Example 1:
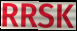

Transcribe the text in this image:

RRSK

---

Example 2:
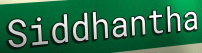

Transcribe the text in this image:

Siddhantha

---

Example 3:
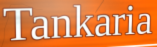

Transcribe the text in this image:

Tankaria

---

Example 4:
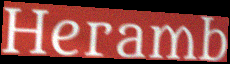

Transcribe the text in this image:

Heramb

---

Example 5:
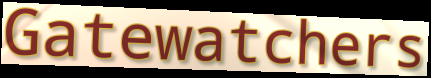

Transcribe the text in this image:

Gatewatchers